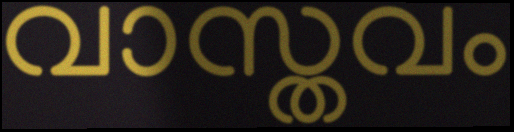
വാസ്തവം